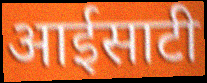
आईसाटी